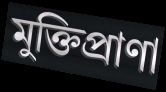
মুক্তিপ্রাণা